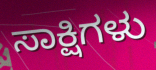
ಸಾಕ್ಷಿಗಳು